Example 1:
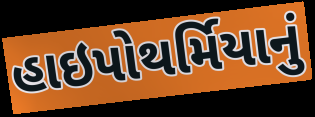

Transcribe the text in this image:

હાઇપોથર્મિયાનું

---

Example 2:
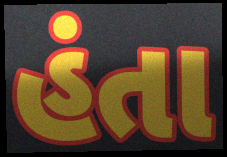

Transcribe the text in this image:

હંતા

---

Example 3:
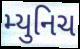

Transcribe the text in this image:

મ્યુનિચ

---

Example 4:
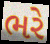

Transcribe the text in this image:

ભરે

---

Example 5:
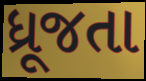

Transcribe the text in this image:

ધ્રૂજતા